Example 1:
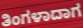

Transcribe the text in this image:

ತಿಂಗಳಾದಾಗ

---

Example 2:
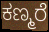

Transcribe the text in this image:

ಕಣ್ಮರೆ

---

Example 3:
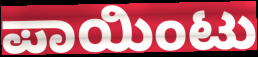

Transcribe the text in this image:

ಪಾಯಿಂಟು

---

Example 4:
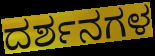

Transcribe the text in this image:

ದರ್ಶನಗಳ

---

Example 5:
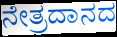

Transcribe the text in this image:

ನೇತ್ರದಾನದ